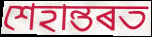
শেহান্তৰত